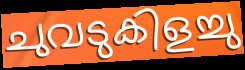
ചുവടുകിളച്ചു